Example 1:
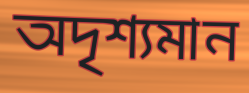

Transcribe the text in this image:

অদৃশ্যমান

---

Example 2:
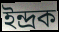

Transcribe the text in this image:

ইন্দ্ৰক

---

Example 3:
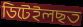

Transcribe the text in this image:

ডিটেইলছত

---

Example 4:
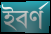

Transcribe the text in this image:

ইবৰ্ণ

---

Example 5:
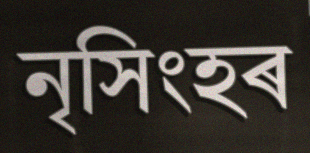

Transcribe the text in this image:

নৃসিংহৰ